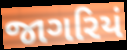
જાગરિયં